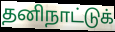
தனிநாட்டுக்